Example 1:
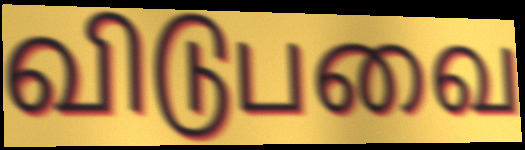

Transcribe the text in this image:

விடுபவை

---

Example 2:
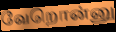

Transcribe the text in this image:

வேறொன்னு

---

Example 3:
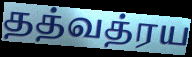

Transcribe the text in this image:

தத்வத்ரய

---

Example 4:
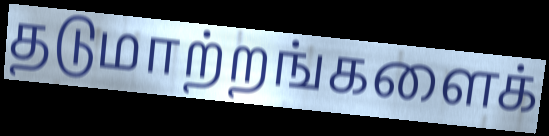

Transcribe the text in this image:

தடுமாற்றங்களைக்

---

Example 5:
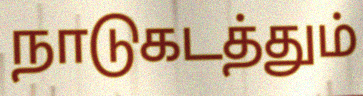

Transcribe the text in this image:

நாடுகடத்தும்